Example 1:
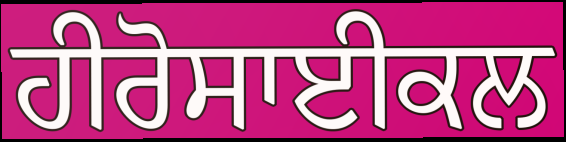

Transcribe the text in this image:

ਹੀਰੋਸਾਈਕਲ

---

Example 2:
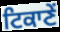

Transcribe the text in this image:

ਟਿਕਾਣੇਂ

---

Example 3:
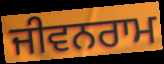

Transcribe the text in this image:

ਜੀਵਨਰਾਮ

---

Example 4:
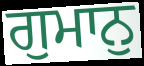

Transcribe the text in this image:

ਗੁਮਾਨੁ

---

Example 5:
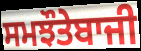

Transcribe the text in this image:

ਸਮਝੌਤੇਬਾਜੀ